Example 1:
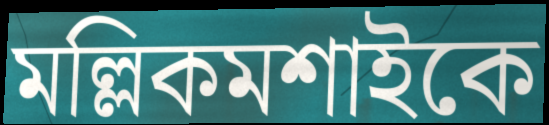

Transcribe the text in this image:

মল্লিকমশাইকে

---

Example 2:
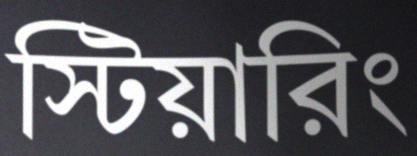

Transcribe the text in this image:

স্টিয়ারিং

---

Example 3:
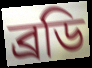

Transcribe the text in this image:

ব্রডি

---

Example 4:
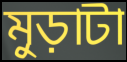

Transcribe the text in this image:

মুড়াটা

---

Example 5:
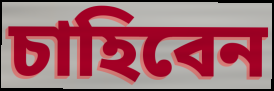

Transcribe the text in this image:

চাহিবেন